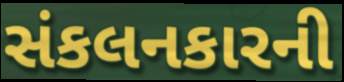
સંકલનકારની